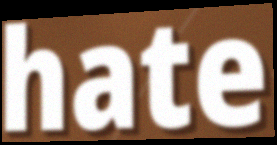
hate